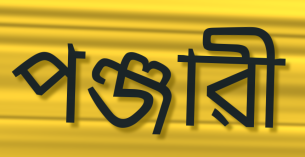
পঞ্জাৱী